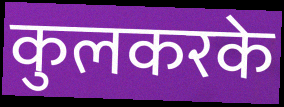
कुलकरके